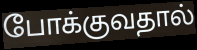
போக்குவதால்